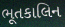
ભૂતકાલિન